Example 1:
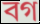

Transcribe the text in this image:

বগ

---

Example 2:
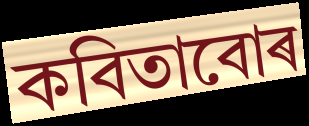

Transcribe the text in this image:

কবিতাবোৰ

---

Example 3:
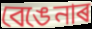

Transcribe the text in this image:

বেঙেনাৰ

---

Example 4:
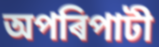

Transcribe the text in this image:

অপৰিপাটী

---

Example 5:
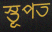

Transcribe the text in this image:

স্তূপত